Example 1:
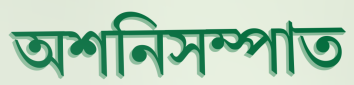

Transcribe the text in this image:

অশনিসম্পাত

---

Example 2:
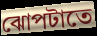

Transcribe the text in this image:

ঝোপটাতে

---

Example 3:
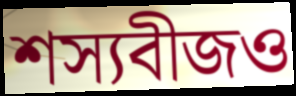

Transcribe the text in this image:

শস্যবীজও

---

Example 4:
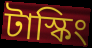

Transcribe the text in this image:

টাস্কিং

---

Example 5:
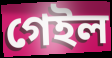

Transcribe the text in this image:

গেইল